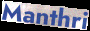
Manthri